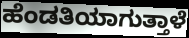
ಹೆಂಡತಿಯಾಗುತ್ತಾಳೆ